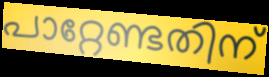
പാറ്റേണ്ടതിന്